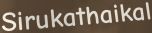
Sirukathaikal